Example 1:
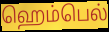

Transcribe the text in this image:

ஹெம்பெல்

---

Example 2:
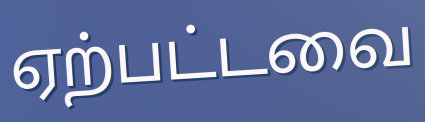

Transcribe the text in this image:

ஏற்பட்டவை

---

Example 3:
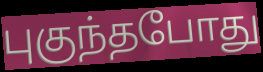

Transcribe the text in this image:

புகுந்தபோது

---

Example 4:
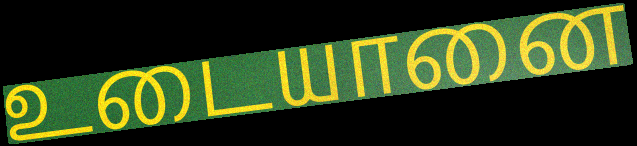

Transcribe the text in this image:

உடையானை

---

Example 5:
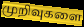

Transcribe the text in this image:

முறிவுகளை